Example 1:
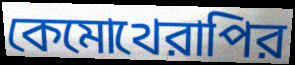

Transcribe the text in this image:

কেমোথেরাপির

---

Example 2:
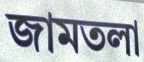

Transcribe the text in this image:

জামতলা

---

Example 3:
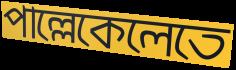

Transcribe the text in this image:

পাল্লেকেলেতে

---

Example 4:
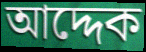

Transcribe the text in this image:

আদ্দেক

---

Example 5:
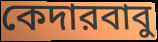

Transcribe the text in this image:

কেদারবাবু